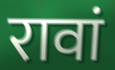
रावां